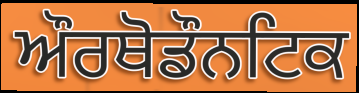
ਔਰਥੋਡੌਨਟਿਕ